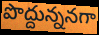
పొద్దున్ననగా